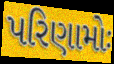
પરિણામોઃ